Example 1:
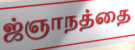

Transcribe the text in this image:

ஜ்ஞாநத்தை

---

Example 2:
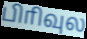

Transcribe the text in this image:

பிரிவுல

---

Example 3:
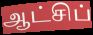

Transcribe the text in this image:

ஆட்சிப்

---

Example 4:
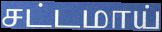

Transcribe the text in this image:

சட்டமாய்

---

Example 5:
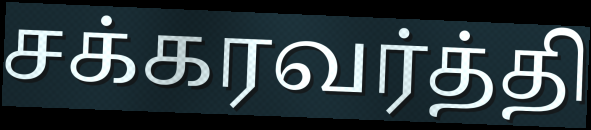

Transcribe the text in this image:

சக்கரவர்த்தி